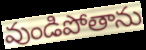
వుండిపోతాను